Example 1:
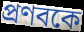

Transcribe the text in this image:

প্রণবকে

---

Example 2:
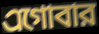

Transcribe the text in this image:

এগোবার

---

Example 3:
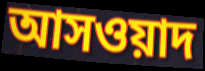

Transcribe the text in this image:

আসওয়াদ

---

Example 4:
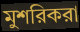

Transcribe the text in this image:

মুশরিকরা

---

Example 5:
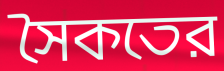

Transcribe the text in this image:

সৈকতের